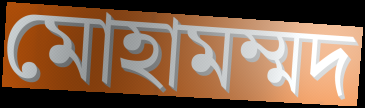
মোহামম্মদ